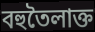
বহুতৈলাক্ত